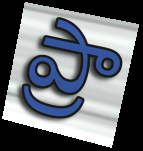
ప్రా